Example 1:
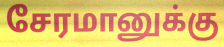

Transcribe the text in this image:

சேரமானுக்கு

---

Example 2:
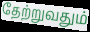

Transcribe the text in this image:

தேற்றுவதும்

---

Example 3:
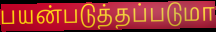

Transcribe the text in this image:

பயன்படுத்தப்படுமா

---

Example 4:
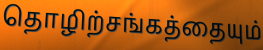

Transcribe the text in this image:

தொழிற்சங்கத்தையும்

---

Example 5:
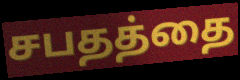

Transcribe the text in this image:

சபதத்தை